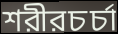
শরীরচর্চা